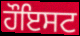
ਹੌਇਸਟ